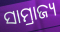
ସାମ୍ରାଜ୍ଯ